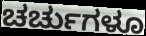
ಚರ್ಚುಗಳೂ